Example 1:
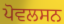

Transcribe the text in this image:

ਪੋਵਲਸਨ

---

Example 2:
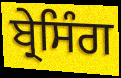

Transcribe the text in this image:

ਬ੍ਰੇਸਿੰਗ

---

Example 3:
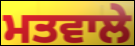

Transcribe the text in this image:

ਮਤਵਾਲੇ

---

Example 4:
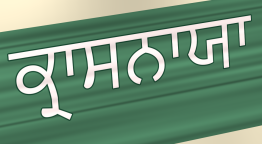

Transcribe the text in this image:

ਕ੍ਰਾਸਨਾਯਾ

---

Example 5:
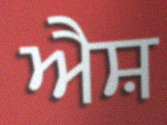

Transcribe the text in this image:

ਐਸ਼